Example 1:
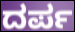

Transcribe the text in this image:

ದರ್ಪ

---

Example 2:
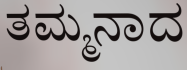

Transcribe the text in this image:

ತಮ್ಮನಾದ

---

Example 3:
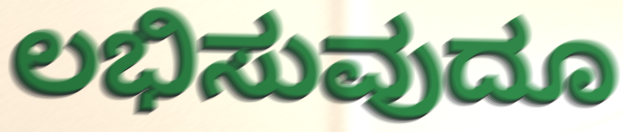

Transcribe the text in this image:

ಲಭಿಸುವುದೂ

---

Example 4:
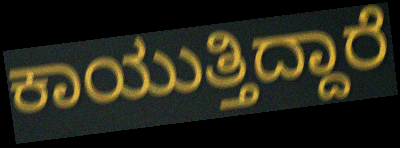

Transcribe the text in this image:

ಕಾಯುತ್ತಿದ್ದಾರೆ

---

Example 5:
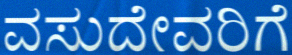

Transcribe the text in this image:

ವಸುದೇವರಿಗೆ